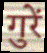
गुरें